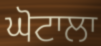
ਘੋਟਾਲਾ